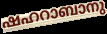
ഷഹറാബാനു